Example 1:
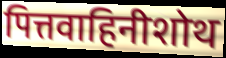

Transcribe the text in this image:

पित्तवाहिनीशोथ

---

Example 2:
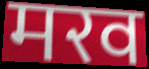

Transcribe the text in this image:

मरव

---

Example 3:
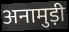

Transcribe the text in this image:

अनामुड़ी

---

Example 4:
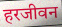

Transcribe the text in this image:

हरजीवन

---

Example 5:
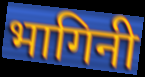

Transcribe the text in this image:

भागिनी